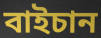
বাইচান